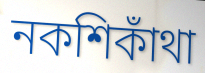
নকশিকাঁথা